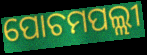
ପୋଚମପଲ୍ଲୀ